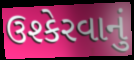
ઉશ્કેરવાનું